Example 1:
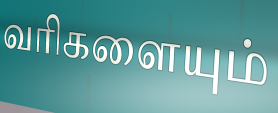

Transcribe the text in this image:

வரிகளையும்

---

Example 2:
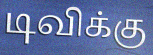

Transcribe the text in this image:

டிவிக்கு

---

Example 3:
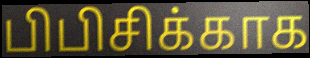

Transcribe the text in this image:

பிபிசிக்காக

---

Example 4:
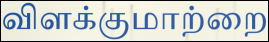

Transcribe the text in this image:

விளக்குமாற்றை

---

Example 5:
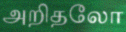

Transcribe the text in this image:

அறிதலோ